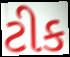
ટીક